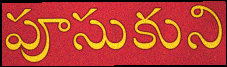
పూసుకుని